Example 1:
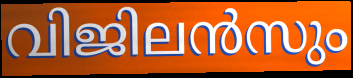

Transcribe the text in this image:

വിജിലൻസും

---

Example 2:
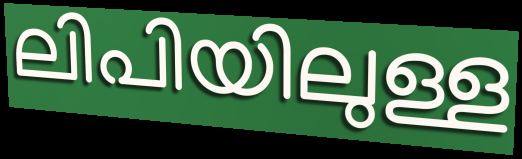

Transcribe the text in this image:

ലിപിയിലുള്ള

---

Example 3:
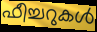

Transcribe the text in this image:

ഫീച്ചറുകൾ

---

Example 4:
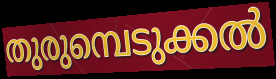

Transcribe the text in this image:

തുരുമ്പെടുക്കൽ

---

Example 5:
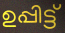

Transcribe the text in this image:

ഉപ്പിട്ട്